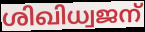
ശിഖിധ്വജന്